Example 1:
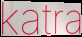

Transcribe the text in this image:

katra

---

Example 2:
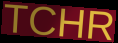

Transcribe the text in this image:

TCHR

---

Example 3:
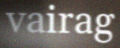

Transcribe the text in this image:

vairag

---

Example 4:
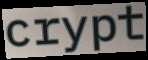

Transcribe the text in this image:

crypt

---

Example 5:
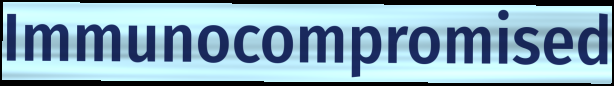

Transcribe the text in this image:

Immunocompromised